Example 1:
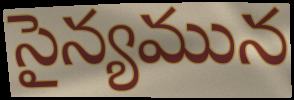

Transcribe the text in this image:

సైన్యమున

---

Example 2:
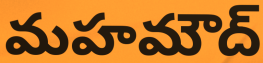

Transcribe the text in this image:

మహమౌద్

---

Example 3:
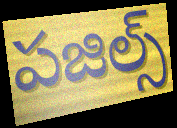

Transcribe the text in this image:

పజిల్స్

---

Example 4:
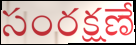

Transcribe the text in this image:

సంరక్షణే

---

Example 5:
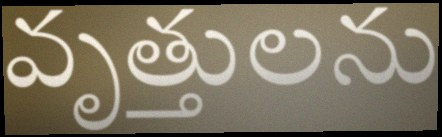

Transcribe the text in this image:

వృత్తులను